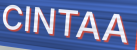
CINTAA